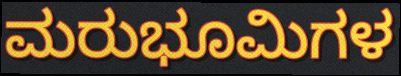
ಮರುಭೂಮಿಗಳ